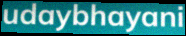
udaybhayani